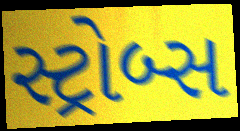
સ્ટ્રોબ્સ